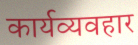
कार्यव्यवहार